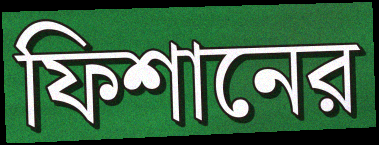
ফিশানের